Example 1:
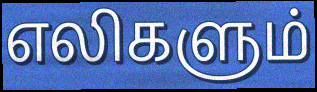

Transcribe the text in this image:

எலிகளும்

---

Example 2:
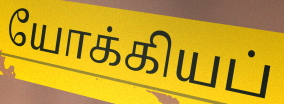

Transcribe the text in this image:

யோக்கியப்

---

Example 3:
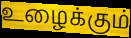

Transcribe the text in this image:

உழைக்கும்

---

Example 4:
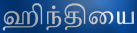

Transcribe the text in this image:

ஹிந்தியை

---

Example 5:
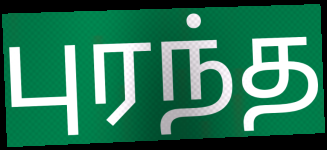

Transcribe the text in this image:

புரந்த